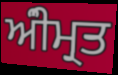
ਅੰੀਮ੍ਰਤ